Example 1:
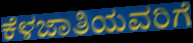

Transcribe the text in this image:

ಕೆಳಜಾತಿಯವರಿಗೆ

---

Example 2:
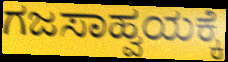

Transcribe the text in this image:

ಗಜಸಾಹ್ವಯಕ್ಕೆ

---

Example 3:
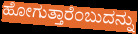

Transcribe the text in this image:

ಹೋಗುತ್ತಾರೆಂಬುದನ್ನು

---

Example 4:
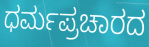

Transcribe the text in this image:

ಧರ್ಮಪ್ರಚಾರದ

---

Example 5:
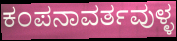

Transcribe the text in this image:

ಕಂಪನಾವರ್ತವುಳ್ಳ